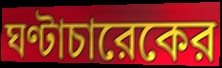
ঘণ্টাচারেকের